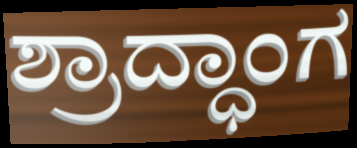
ಶ್ರಾದ್ಧಾಂಗ